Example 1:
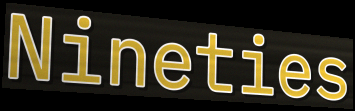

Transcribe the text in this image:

Nineties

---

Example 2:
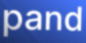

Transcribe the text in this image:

pand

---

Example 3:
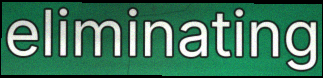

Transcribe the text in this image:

eliminating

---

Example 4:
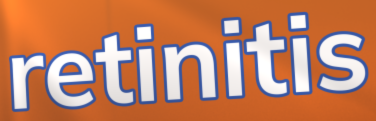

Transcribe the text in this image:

retinitis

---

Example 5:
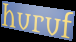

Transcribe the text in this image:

huruf